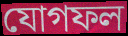
যোগফল